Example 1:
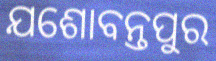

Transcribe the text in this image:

ଯଶୋବନ୍ତପୁର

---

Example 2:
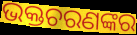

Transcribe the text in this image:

ଭକ୍ତଚରଣଙ୍କର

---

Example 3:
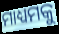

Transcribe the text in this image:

ମାଧ୍ୟମକୁ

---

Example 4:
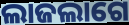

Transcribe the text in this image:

ଲାଜଲାଗେ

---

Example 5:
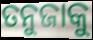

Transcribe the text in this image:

ତନୁଜାକୁ